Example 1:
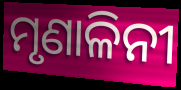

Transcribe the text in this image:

ମୃଣାଳିନୀ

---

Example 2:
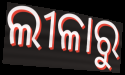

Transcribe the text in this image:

ଲୀଳାରୁ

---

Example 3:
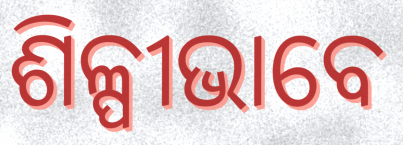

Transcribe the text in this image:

ଶିଳ୍ପୀଭାବେ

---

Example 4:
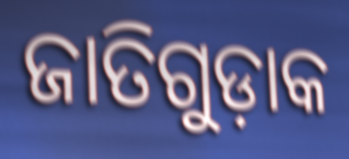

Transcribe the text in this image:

ଜାତିଗୁଡ଼ାକ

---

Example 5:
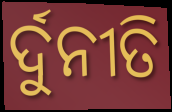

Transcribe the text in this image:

ର୍ଦୁନୀତି